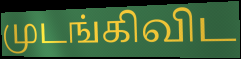
முடங்கிவிட